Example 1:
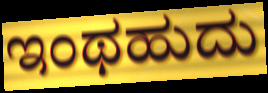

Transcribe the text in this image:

ಇಂಥಹುದು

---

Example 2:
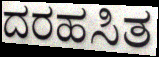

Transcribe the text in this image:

ದರಹಸಿತ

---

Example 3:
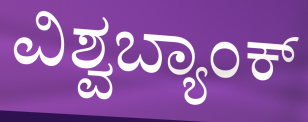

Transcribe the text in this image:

ವಿಶ್ವಬ್ಯಾಂಕ್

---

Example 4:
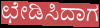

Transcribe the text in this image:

ಛೇಡಿಸಿದಾಗ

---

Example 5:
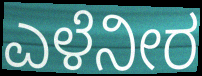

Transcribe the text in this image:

ಎಳೆನೀರ